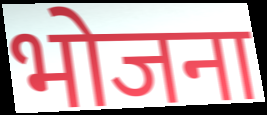
भोजना